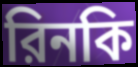
রিনকি